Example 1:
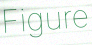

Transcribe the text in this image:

Figure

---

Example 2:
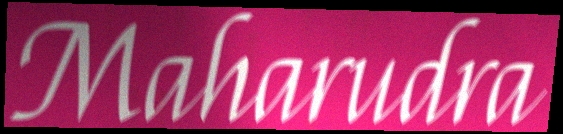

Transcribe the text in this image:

Maharudra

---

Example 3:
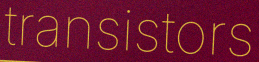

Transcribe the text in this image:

transistors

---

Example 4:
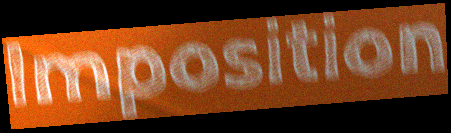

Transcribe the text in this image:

Imposition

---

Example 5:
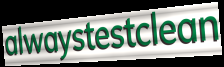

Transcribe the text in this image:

alwaystestclean